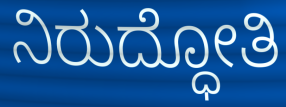
ನಿರುದ್ಧೋತಿ